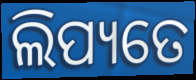
ଲିପ୍ୟତେ